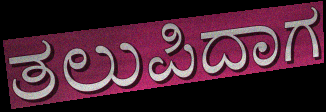
ತಲುಪಿದಾಗ